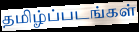
தமிழ்ப்படங்கள்